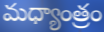
మధ్యాంత్రం